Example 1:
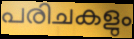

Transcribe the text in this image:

പരിചകളും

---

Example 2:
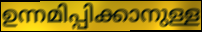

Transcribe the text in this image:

ഉന്നമിപ്പിക്കാനുള്ള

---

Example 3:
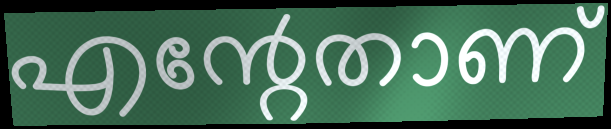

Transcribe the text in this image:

എന്റേതാണ്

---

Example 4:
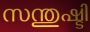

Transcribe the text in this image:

സന്തുഷ്ടി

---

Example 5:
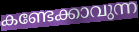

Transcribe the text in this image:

കണ്ടേക്കാവുന്ന